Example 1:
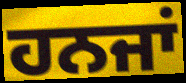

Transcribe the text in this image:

ਹਨਜਾਂ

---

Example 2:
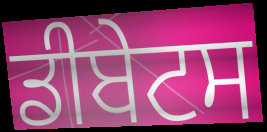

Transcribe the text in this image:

ਡੀਬੇਟਸ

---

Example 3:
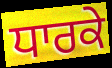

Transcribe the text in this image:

ਧਾਰਕੇ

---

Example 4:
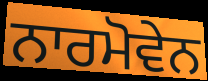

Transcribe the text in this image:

ਨਾਰਮੋਵੇਨ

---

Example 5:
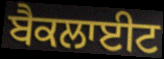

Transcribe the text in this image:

ਬੈਕਲਾਈਟ